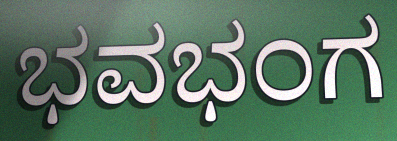
ಭವಭಂಗ